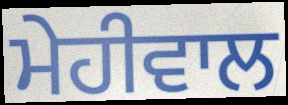
ਮੇਹੀਵਾਲ